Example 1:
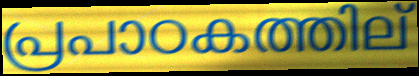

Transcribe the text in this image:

പ്രപാഠകത്തില്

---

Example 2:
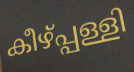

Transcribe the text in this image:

കീഴ്പ്പള്ളി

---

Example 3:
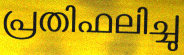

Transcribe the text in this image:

പ്രതിഫലിച്ചു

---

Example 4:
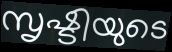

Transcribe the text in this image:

സൃഷ്ടിയുടെ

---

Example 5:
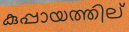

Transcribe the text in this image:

കുപ്പായത്തില്